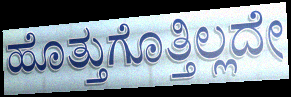
ಹೊತ್ತುಗೊತ್ತಿಲ್ಲದೇ